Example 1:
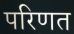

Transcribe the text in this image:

परिणत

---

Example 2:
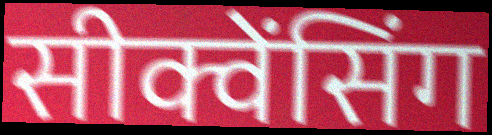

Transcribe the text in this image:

सीक्वेंसिंग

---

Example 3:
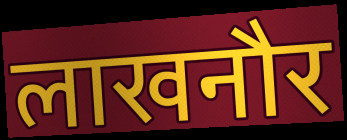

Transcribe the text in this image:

लाखनौर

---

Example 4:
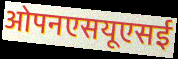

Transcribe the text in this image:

ओपनएसयूएसई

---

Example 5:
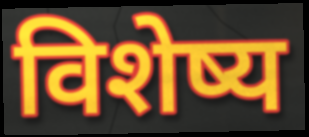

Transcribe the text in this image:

विशेष्य